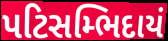
પટિસમ્ભિદાયં